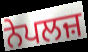
ਨੇਪਲਜ਼